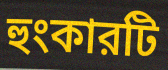
হুংকারটি